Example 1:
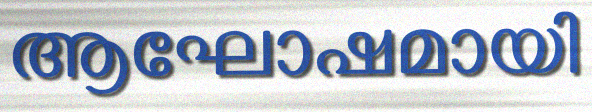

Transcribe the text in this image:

ആഘോഷമായി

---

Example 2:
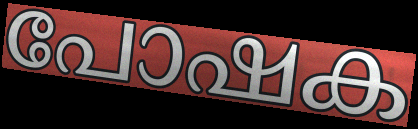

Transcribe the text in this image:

പോഷക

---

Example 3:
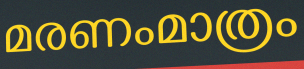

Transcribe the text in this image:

മരണംമാത്രം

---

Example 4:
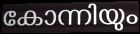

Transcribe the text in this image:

കോന്നിയും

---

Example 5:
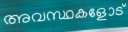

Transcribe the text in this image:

അവസ്ഥകളോട്